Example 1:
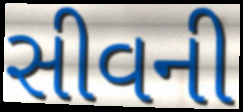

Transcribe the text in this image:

સીવની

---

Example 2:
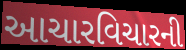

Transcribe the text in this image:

આચારવિચારની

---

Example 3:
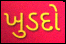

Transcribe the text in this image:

ખુડદો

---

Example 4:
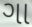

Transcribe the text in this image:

ગા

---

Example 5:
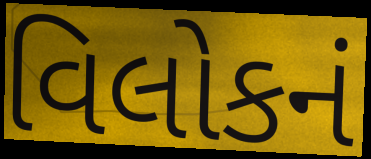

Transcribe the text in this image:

વિલોકનં